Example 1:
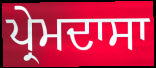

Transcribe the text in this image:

ਪ੍ਰੇਮਦਾਸਾ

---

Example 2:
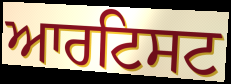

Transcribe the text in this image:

ਆਰਟਿਸਟ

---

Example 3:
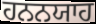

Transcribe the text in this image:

ਹਨਨਯਾਹ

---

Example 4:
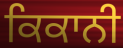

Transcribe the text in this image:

ਕਿਕਾਨੀ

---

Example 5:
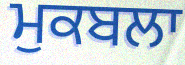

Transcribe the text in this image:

ਮੁਕਬਲਾ